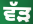
ਵੱੜ